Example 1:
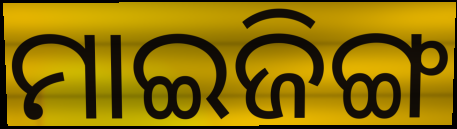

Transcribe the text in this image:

ମାଇଜିଙ୍ଗ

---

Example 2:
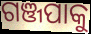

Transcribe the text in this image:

ଗଞ୍ଜପାକୁ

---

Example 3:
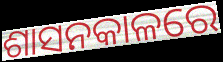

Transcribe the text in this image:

ଶାସନକାଳରେ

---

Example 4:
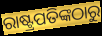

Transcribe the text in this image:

ରାଷ୍ଟ୍ରପତିଙ୍କଠାରୁ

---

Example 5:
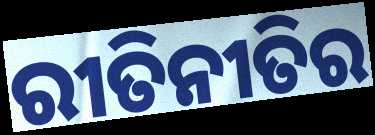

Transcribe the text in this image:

ରୀତିନୀତିର